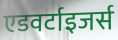
एडवर्टाइजर्स